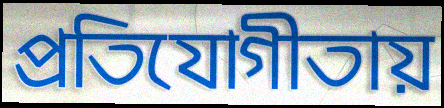
প্রতিযোগীতায়